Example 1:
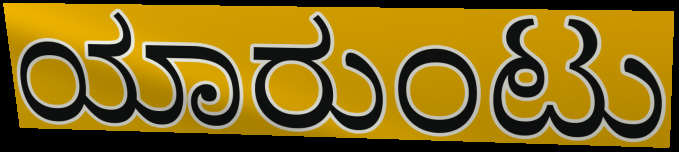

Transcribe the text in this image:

ಯಾರುಂಟು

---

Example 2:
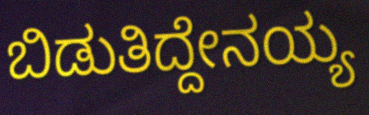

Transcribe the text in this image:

ಬಿಡುತಿದ್ದೇನಯ್ಯ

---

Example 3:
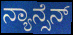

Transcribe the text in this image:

ನ್ಯಾನ್ಸೆನ್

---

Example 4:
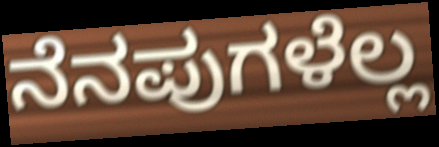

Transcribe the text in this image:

ನೆನಪುಗಳೆಲ್ಲ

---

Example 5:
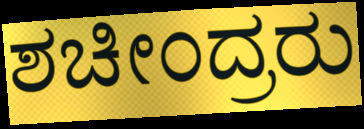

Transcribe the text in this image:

ಶಚೀಂದ್ರರು